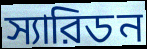
স্যারিডন